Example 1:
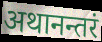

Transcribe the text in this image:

अथानन्तरं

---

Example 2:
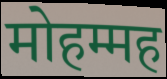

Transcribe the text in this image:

मोहम्मह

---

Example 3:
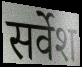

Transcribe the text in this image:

सर्वेश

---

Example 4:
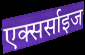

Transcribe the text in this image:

एक्सर्साइज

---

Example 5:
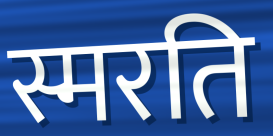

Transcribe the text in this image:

स्मरति